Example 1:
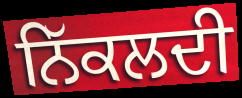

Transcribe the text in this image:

ਨਿੱਕਲਦੀ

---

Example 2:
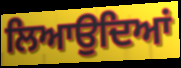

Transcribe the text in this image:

ਲਿਆਉਦਿਆਂ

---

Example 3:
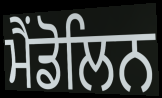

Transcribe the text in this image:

ਮੈਂਡੋਲਿਨ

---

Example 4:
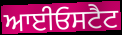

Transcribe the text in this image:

ਆਈਓਸਟੈਟ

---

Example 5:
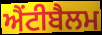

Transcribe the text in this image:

ਐਂਟੀਬੈਲਮ